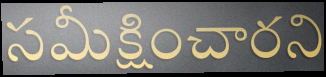
సమీక్షించారని